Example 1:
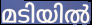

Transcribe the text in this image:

മടിയിൽ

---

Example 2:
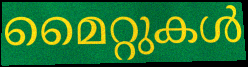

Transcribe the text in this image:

മൈറ്റുകൾ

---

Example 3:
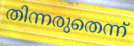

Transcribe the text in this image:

തിന്നരുതെന്ന്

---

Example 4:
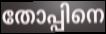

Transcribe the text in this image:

തോപ്പിനെ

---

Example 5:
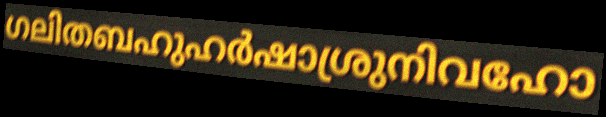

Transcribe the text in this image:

ഗലിതബഹുഹർഷാശ്രുനിവഹോ